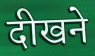
दीखने